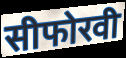
सीफोरवी